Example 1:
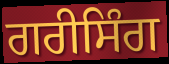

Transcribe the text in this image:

ਗਰੀਸਿੰਗ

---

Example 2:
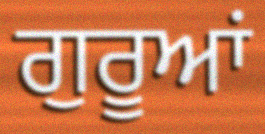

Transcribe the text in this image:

ਗੁਰੂਆਂ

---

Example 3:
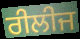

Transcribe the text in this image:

ਰੀਲੀਜ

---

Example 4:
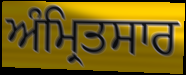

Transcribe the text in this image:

ਅੰਮ੍ਰਿਤਸਾਰ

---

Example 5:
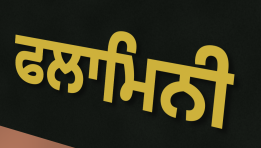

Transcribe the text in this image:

ਫਲਾਮਿਨੀ